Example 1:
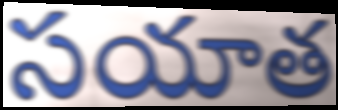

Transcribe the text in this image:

సయాత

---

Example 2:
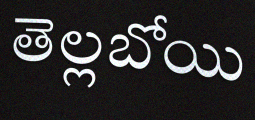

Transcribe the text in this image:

తెల్లబోయి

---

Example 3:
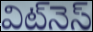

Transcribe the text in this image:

విట్‌నెస్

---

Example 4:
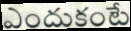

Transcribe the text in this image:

ఎందుకంటే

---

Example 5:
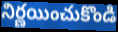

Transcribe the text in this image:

నిర్ణయించుకొండి